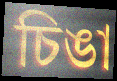
চিঙা